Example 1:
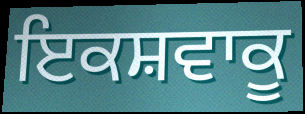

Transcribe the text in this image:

ਇਕਸ਼ਵਾਕੂ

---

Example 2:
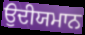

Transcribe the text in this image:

ਉਦੀਯਮਾਨ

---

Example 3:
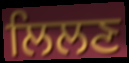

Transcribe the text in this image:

ਲਿਲਣ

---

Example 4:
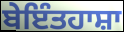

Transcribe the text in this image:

ਬੇਇੰਤਹਾਸ਼ਾ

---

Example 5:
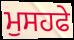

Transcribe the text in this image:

ਮੁਸਹਫੇ